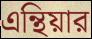
এন্থিয়ার